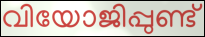
വിയോജിപ്പുണ്ട്